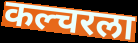
कल्चरला